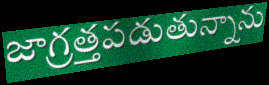
జాగ్రత్తపడుతున్నాను